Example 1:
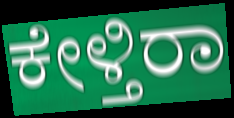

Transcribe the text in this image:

ಕೇಳ್ತಿರಾ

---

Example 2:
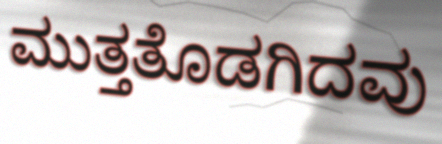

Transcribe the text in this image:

ಮುತ್ತತೊಡಗಿದವು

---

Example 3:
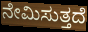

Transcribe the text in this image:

ನೇಮಿಸುತ್ತದೆ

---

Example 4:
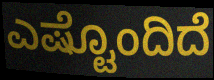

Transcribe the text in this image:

ಎಷ್ಟೊಂದಿದೆ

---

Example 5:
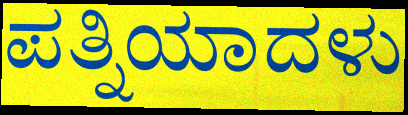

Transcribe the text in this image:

ಪತ್ನಿಯಾದಳು